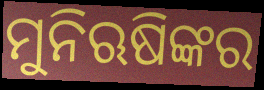
ମୁନିଋଷିଙ୍କର